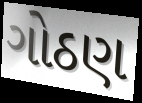
ગોઠણ